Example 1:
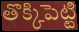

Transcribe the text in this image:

తొక్కిపెట్టి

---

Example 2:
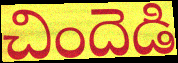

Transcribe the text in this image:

చిందెడి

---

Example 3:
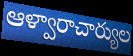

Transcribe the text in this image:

ఆళ్వారాచార్యుల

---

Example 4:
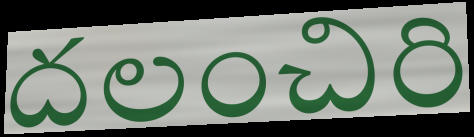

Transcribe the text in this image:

దలంచిరి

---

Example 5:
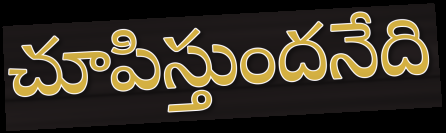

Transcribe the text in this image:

చూపిస్తుందనేది